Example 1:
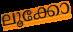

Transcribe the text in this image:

ലൂക്കോ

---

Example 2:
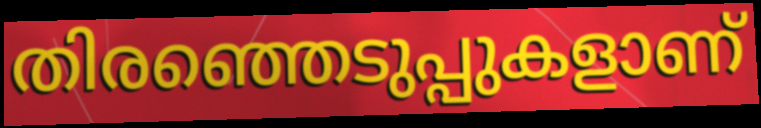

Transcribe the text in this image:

തിരഞ്ഞെടുപ്പുകളാണ്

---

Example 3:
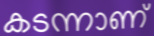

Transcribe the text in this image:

കടന്നാണ്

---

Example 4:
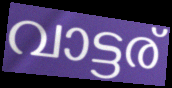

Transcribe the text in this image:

വാട്ടര്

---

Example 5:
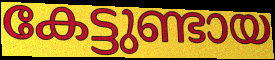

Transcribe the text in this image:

കേട്ടുണ്ടായ